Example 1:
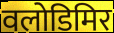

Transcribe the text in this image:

वलोडिमिर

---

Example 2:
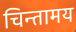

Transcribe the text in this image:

चिन्तामय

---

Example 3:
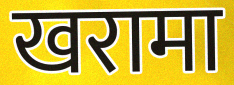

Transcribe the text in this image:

खरामा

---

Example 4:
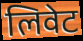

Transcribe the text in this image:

लिवेट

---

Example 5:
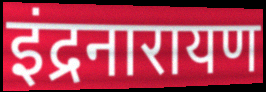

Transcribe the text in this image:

इंद्रनारायण